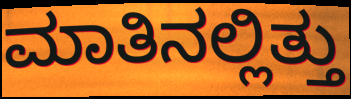
ಮಾತಿನಲ್ಲಿತ್ತು